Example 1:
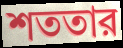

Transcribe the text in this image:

শততার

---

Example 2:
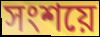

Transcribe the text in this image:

সংশয়ে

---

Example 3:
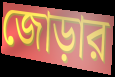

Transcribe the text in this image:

জোড়ার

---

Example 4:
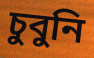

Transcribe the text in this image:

চুবুনি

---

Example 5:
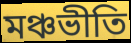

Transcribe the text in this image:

মঞ্চভীতি